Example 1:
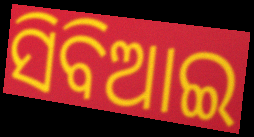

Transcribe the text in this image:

ସିବିଆଇ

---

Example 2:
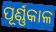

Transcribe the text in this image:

ପୂର୍ଣ୍ଣକାଳ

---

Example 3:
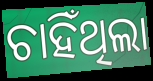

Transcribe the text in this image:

ଚାହିଁଥିଲା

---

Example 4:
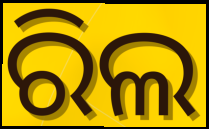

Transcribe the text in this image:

ରିଲ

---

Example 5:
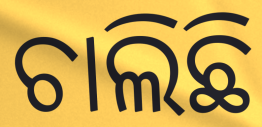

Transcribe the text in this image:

ଚାଲିଛି